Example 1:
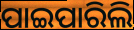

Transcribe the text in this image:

ପାଇପାରିଲି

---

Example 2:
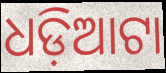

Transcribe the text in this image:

ଧଡ଼ିଆଟା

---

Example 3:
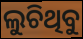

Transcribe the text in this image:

ଲୁଚିଥିବୁ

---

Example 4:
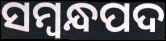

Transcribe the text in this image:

ସମ୍ବନ୍ଧପଦ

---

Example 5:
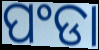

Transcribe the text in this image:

ପଂଡା